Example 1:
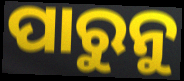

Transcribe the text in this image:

ପାରୁନୁ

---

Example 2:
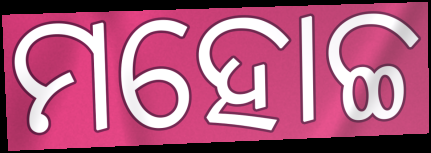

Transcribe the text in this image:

ମହୋଚ୍ଚ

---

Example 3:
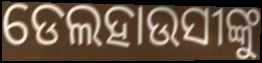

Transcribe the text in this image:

ଡେଲହାଉସୀଙ୍କୁ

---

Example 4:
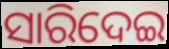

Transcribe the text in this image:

ସାରିଦେଇ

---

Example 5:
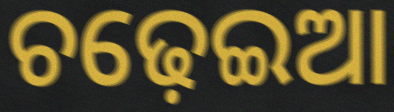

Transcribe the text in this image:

ଚଢ଼େଇଆ